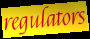
regulators